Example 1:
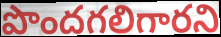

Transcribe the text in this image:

పొందగలిగారని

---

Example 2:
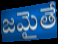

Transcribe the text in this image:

జమైతే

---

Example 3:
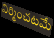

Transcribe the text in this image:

నిర్మించటమే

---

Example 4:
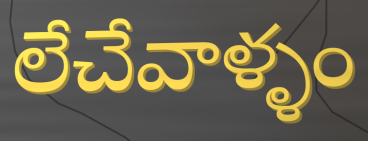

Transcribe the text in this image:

లేచేవాళ్ళం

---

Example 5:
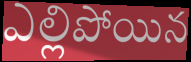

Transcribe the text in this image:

ఎల్లిపోయిన